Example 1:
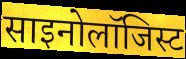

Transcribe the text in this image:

साइनोलॉजिस्ट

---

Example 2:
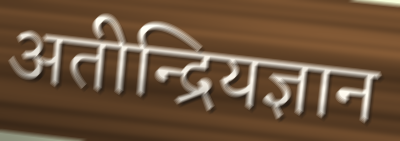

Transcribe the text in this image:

अतीन्द्रियज्ञान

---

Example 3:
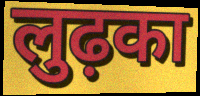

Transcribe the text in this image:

लुढ़का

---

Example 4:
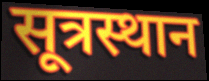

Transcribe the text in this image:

सूत्रस्थान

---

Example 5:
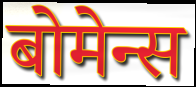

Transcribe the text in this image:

बोमेन्स